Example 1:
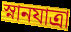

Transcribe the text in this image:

স্নানযাত্রা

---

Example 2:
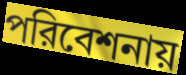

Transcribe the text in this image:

পরিবেশনায়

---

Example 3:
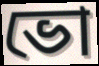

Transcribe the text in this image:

ভো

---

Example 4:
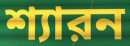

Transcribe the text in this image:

শ্যারন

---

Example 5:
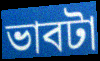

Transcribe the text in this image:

ভাবটা